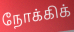
நோக்கிக்